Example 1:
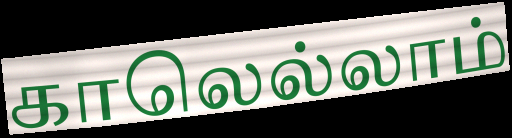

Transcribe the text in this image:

காலெல்லாம்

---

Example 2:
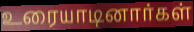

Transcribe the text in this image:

உரையாடினார்கள்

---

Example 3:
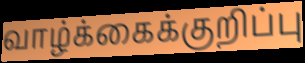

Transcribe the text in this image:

வாழ்க்கைக்குறிப்பு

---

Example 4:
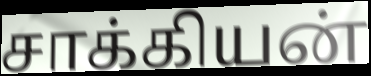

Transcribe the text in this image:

சாக்கியன்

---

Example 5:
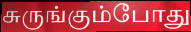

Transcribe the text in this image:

சுருங்கும்போது